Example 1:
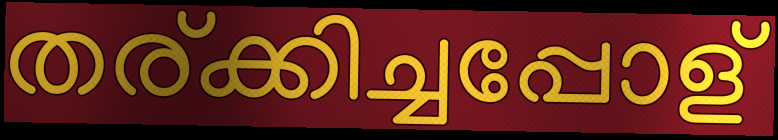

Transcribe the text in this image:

തര്ക്കിച്ചപ്പോള്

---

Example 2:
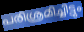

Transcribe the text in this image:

പരിശ്രമിച്ചിട്ടും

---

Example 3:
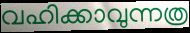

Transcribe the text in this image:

വഹിക്കാവുന്നത്ര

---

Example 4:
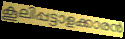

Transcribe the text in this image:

കൂലിപ്പട്ടാളക്കാരൻ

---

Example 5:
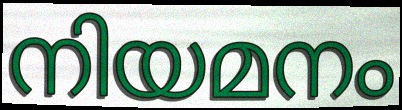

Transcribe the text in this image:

നിയമനം